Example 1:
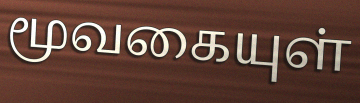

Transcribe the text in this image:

மூவகையுள்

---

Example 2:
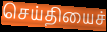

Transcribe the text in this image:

செய்தியைச்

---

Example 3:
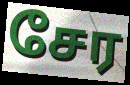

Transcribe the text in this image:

சேர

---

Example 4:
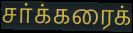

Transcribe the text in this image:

சர்க்கரைக்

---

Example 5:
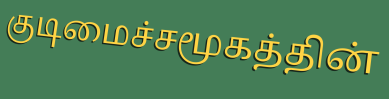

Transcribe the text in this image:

குடிமைச்சமூகத்தின்